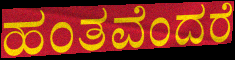
ಹಂತವೆಂದರೆ